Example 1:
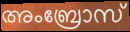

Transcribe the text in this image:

അംബ്രോസ്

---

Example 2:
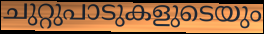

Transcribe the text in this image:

ചുറ്റുപാടുകളുടെയും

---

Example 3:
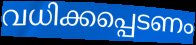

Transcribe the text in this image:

വധിക്കപ്പെടണം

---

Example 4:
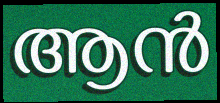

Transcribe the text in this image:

ആൻ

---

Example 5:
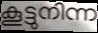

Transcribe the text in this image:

കൂട്ടുനിന്ന